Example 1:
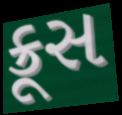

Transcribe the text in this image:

ક્રૂસ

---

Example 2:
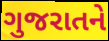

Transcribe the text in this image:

ગુજરાતને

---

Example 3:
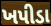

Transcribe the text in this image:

ખપીડા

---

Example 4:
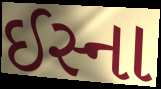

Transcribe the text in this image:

ઈસ્ના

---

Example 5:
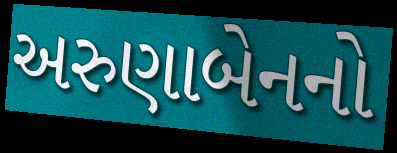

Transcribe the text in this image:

અરુણાબેનનો